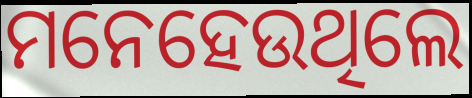
ମନେହେଉଥିଲେ